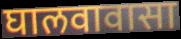
घालवावासा